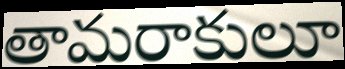
తామరాకులూ